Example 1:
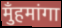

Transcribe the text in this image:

मुँहमांगा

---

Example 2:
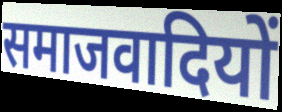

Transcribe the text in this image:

समाजवादियों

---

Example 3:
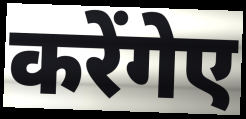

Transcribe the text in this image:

करेंगेए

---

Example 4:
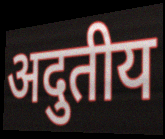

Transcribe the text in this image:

अदुतीय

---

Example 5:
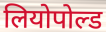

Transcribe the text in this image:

लियोपोल्ड